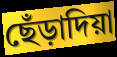
ছেঁড়াদিয়া